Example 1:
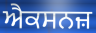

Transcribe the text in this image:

ਐਕਸਨਜ਼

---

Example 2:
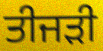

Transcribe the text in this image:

ਤੀਜੜੀ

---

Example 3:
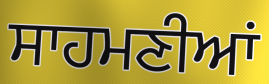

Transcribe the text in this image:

ਸਾਹਮਣੀਆਂ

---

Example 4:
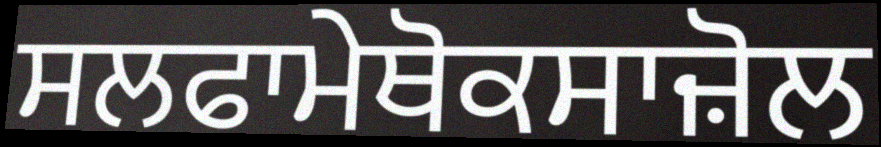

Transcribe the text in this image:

ਸਲਫਾਮੇਥੋਕਸਾਜ਼ੋਲ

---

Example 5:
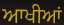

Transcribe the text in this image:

ਆਖੀਆਂ